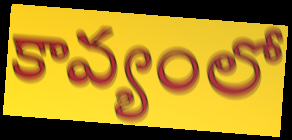
కావ్యంలో